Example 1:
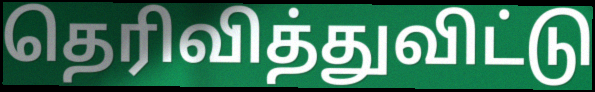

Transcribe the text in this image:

தெரிவித்துவிட்டு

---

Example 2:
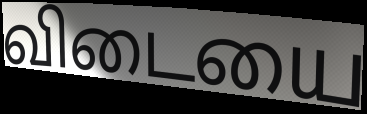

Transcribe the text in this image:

விடையை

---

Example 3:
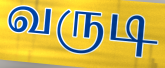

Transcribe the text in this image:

வருடி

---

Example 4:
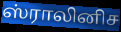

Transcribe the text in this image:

ஸ்ராலினிச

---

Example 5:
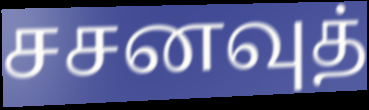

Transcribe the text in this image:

சசனவுத்